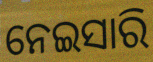
ନେଇସାରି